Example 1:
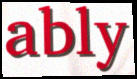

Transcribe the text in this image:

ably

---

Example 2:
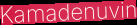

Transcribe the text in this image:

Kamadenuvin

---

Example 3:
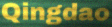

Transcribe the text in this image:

Qingdao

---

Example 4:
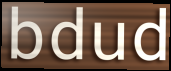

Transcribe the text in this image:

bdud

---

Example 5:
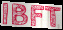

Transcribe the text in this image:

IBFT